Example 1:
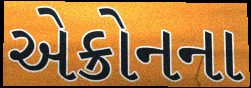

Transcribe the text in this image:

એક્રોનના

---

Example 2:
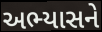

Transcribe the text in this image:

અભ્યાસને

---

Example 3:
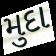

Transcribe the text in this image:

મુદા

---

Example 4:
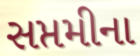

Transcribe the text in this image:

સપ્તમીના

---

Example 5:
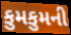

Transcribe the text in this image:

કુમકુમની